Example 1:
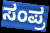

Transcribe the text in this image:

ಸಂಪ್ರ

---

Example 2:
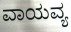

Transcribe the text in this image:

ವಾಯವ್ಯ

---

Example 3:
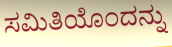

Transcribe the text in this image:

ಸಮಿತಿಯೊಂದನ್ನು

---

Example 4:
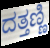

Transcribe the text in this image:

ದತ್ತಣ್ಣಿ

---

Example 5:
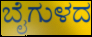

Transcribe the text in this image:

ಬೈಗುಳದ